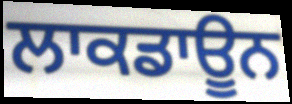
ਲਾਕਡਾਊਨ